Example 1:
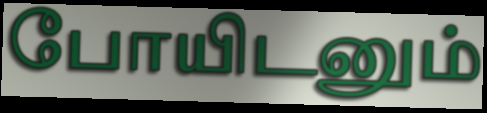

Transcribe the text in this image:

போயிடனும்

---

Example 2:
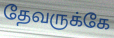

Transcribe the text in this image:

தேவருக்கே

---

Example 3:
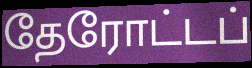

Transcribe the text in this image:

தேரோட்டப்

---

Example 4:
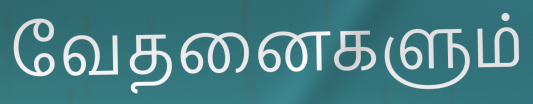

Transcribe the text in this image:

வேதனைகளும்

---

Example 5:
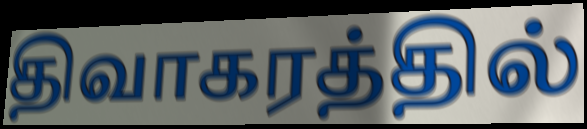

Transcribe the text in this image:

திவாகரத்தில்